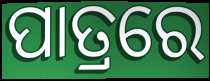
ପାତ୍ରରେ